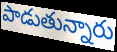
పాడుతున్నారు